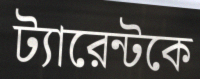
ট্যারেন্টকে